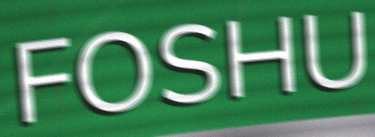
FOSHU